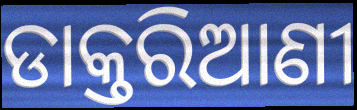
ଡାକ୍ତରିଆଣୀ